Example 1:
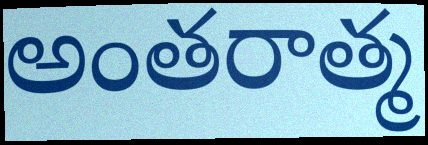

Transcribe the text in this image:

అంతరాత్మ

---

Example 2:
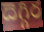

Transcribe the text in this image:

దెగ్గిర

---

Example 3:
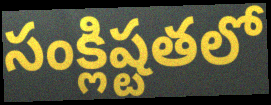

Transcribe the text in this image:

సంక్లిష్టతలో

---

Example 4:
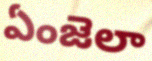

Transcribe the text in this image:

ఏంజెలా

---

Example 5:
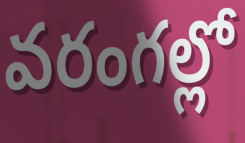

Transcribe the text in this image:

వరంగల్లో